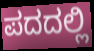
ಪದದಲ್ಲಿ